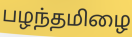
பழந்தமிழை